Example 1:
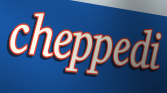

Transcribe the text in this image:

cheppedi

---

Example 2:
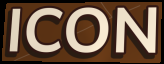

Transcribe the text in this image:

ICON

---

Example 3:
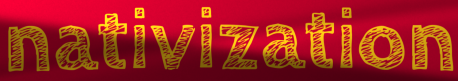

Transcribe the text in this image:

nativization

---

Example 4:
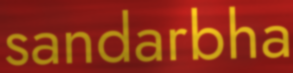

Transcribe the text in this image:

sandarbha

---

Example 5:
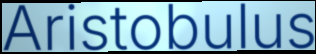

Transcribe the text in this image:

Aristobulus